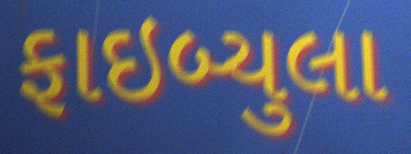
ફાઇબ્યુલા